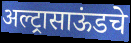
अल्ट्रासाऊंडचे